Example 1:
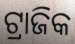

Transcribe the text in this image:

ଟ୍ରାଜିକ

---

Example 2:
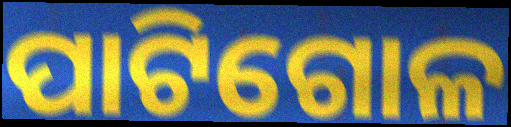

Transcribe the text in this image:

ପାଟିଗୋଳ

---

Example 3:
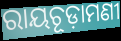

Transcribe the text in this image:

ରାୟଚୂଡ଼ାମଣୀ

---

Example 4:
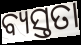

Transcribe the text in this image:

ବ୍ୟସ୍ତତା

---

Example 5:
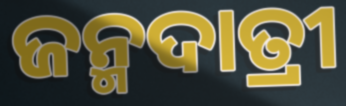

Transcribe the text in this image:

ଜନ୍ମଦାତ୍ରୀ